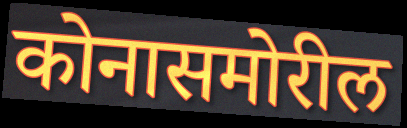
कोनासमोरील